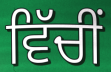
ਵਿੱਚੀਂ